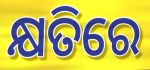
କ୍ଷତିରେ